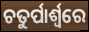
ଚତୁର୍ପାର୍ଶ୍ୱରେ